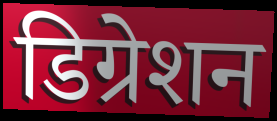
डिग्रेशन